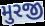
મુરજી